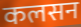
कलसन